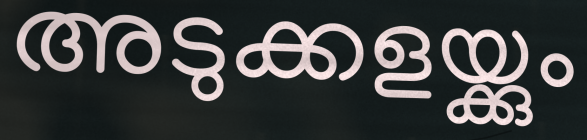
അടുക്കളയ്ക്കും